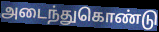
அடைந்துகொண்டு